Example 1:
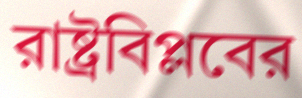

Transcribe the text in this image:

রাষ্ট্রবিপ্লবের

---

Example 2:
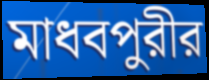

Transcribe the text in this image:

মাধবপুরীর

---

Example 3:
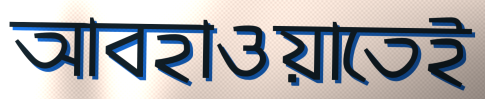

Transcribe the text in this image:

আবহাওয়াতেই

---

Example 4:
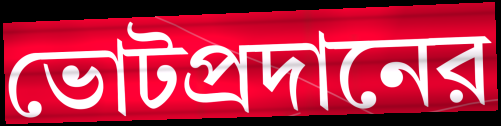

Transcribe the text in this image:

ভোটপ্রদানের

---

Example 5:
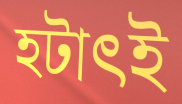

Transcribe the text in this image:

হটাৎই